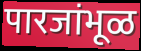
पारजांभूळ